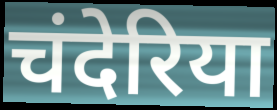
चंदेरिया